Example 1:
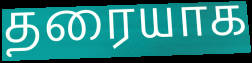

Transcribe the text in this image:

தரையாக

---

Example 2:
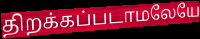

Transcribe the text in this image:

திறக்கப்படாமலேயே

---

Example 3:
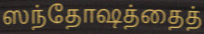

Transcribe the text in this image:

ஸந்தோஷத்தைத்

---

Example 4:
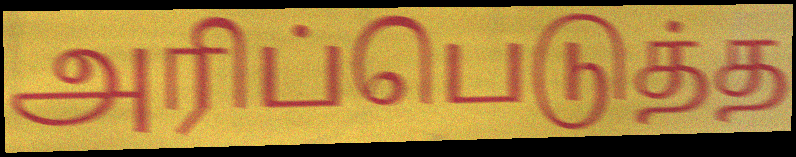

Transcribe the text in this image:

அரிப்பெடுத்த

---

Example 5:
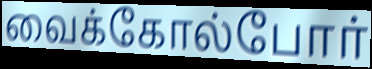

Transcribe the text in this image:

வைக்கோல்போர்